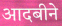
आदबीने